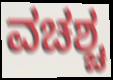
ವಚಶ್ಚ